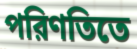
পরিণতিতে